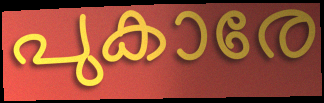
പുകാരേ